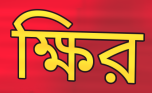
ক্ষির